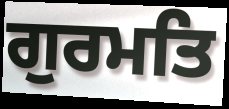
ਗੁਰਮਤਿ